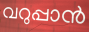
വറുപ്പാൻ